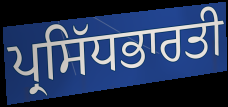
ਪ੍ਰਸਿੱਧਭਾਰਤੀ